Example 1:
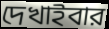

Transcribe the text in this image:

দেখাইবার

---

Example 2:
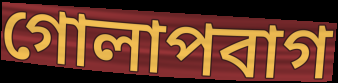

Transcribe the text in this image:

গোলাপবাগ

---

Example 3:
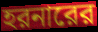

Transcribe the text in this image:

হরনারের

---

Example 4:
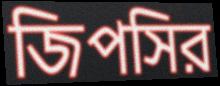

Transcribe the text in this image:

জিপসির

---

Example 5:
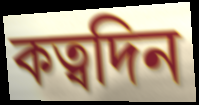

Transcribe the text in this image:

কত্বদিন